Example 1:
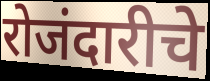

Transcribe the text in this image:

रोजंदारीचे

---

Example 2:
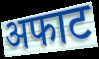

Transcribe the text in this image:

अफाट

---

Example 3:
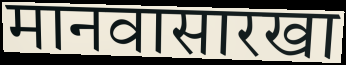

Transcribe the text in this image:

मानवासारखा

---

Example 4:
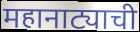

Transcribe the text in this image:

महानाट्याची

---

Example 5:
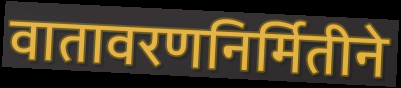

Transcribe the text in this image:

वातावरणनिर्मितीने